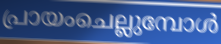
പ്രായംചെല്ലുമ്പോൾ